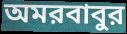
অমরবাবুর